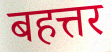
बहत्तर